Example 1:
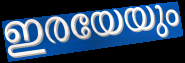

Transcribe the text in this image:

ഇരയേയും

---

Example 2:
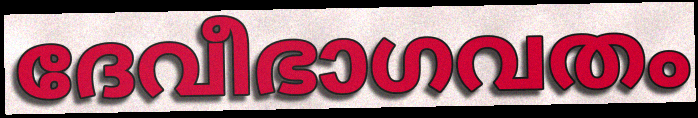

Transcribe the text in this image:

ദേവീഭാഗവതം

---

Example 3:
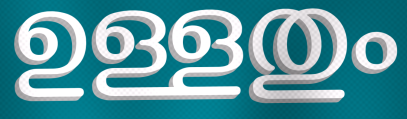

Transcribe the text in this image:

ഉള്ളതും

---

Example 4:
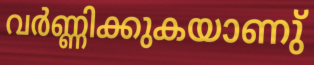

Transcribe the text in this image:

വർണ്ണിക്കുകയാണു്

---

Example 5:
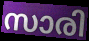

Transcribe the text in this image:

സാരി